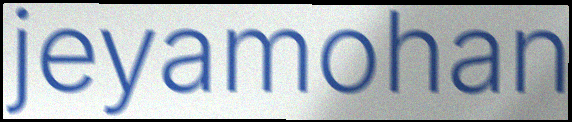
jeyamohan